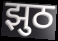
झुठ